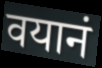
वयानं